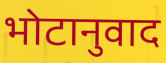
भोटानुवाद